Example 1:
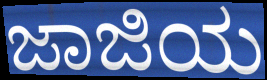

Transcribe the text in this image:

ಜಾಜಿಯ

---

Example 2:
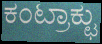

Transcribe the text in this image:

ಕಂಟ್ರಾಕ್ಟು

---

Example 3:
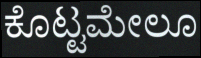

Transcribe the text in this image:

ಕೊಟ್ಟಮೇಲೂ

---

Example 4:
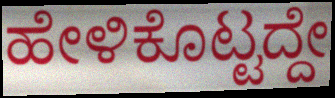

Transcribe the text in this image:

ಹೇಳಿಕೊಟ್ಟದ್ದೇ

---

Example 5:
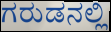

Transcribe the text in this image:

ಗರುಡನಲ್ಲಿ